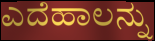
ಎದೆಹಾಲನ್ನು